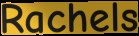
Rachels